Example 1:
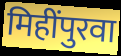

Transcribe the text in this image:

मिहींपुरवा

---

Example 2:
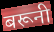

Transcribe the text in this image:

बरूनी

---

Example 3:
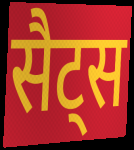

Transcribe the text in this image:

सैट्स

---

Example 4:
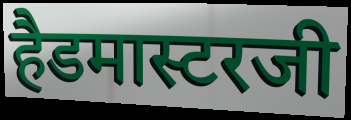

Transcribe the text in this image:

हैडमास्टरजी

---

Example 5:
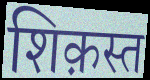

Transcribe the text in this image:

शिक़स्त